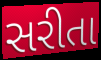
સરીતા